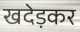
खदेड़कर